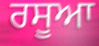
ਰਸੂਆ